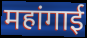
महांगाई